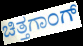
ಚಿತ್ತಗಾಂಗ್